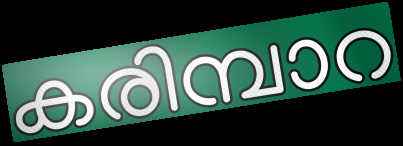
കരിമ്പാറ